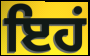
ਇਹਂ